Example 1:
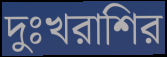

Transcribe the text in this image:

দুঃখরাশির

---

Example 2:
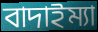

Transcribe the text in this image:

বাদাইম্যা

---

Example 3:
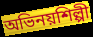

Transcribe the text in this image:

অভিনয়শিল্পী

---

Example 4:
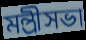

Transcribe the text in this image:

মন্ত্রীসভা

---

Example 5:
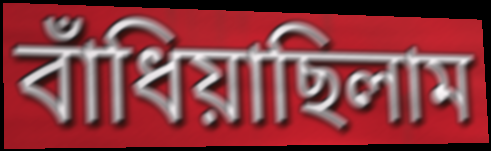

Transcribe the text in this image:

বাঁধিয়াছিলাম